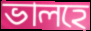
ভালহে